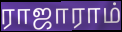
ராஜாராம்